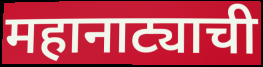
महानाट्याची